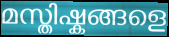
മസ്തിഷ്കങ്ങളെ